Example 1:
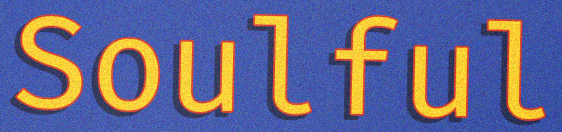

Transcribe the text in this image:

Soulful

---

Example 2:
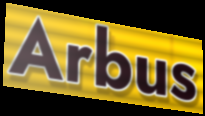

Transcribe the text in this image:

Arbus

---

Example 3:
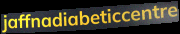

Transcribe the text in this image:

jaffnadiabeticcentre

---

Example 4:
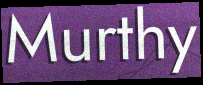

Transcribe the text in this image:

Murthy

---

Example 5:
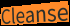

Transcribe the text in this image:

Cleanse